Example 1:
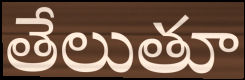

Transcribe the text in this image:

తేలుతూ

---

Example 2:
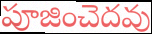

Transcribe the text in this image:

పూజించెదవు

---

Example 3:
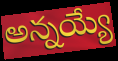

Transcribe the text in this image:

అన్నయ్యే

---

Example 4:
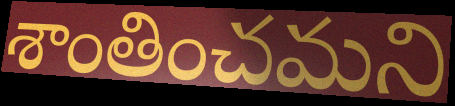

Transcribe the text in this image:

శాంతించమని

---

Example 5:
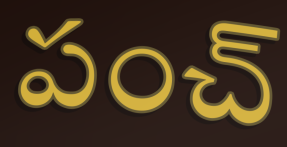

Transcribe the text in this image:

పంచ్